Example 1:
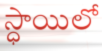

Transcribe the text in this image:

స్ధాయిలో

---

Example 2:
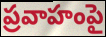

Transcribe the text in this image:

ప్రవాహంపై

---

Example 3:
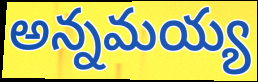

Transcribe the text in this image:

అన్నమయ్య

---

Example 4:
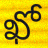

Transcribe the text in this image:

ఖో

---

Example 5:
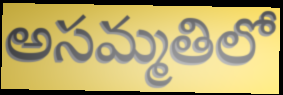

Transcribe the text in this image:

అసమ్మతిలో